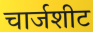
चार्जशीट